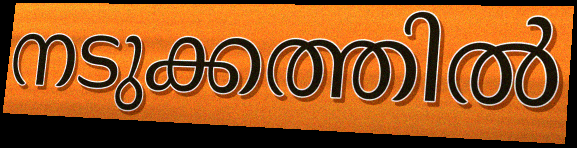
നടുക്കത്തിൽ